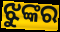
ଝୁଙ୍କର